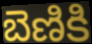
బెణికి